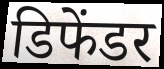
डिफेंडर